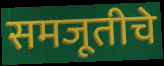
समजूतीचे